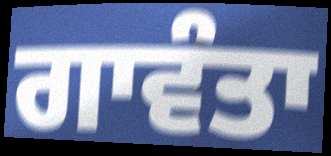
ਗਾਵੰਤਾ